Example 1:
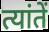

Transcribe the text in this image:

त्यांतें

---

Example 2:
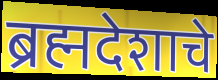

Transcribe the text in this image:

ब्रह्मदेशाचे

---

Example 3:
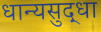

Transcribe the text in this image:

धान्यसुद्धा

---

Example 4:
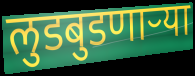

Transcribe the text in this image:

लुडबुडणाऱ्या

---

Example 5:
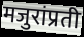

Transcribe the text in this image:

मजुरांप्रती